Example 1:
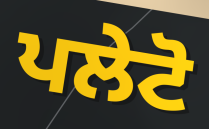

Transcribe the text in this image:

ਪਲੇਟੋ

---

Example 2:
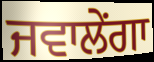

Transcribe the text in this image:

ਜਵਾਲੇਂਗਾ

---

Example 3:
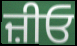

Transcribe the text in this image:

ਜ਼ੀਓ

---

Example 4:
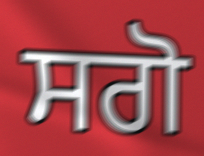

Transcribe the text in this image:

ਸਗੋ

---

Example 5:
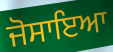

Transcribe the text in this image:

ਜੋਸਾਇਆ